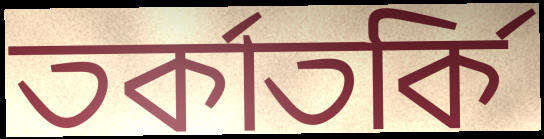
তৰ্কাতৰ্কি